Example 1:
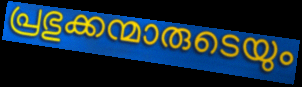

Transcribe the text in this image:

പ്രഭുക്കന്മാരുടെയും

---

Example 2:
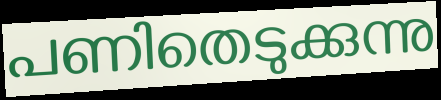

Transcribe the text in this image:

പണിതെടുക്കുന്നു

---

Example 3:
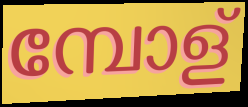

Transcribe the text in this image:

മ്പോള്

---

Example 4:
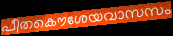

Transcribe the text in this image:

പീതകൌശേയവാസസം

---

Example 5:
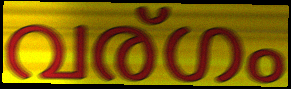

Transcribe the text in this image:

വര്ഗം